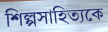
শিল্পসাহিত্যকে